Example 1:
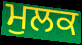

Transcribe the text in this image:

ਮੁਲਕ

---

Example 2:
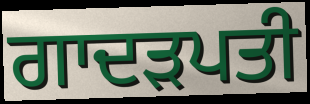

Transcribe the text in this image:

ਗਾਦੜਪਤੀ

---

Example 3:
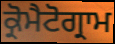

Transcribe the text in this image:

ਕ੍ਰੋਮੈਟੋਗ੍ਰਾਮ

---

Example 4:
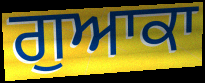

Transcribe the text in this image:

ਗੁਆਕਾ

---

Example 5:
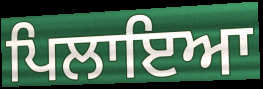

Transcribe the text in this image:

ਪਿਲਾਇਆ